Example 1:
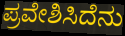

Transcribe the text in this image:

ಪ್ರವೇಶಿಸಿದೆನು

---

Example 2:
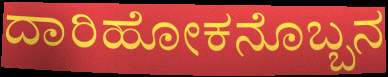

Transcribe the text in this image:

ದಾರಿಹೋಕನೊಬ್ಬನ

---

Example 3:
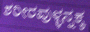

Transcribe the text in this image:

ಶರೀರವುಳ್ಳನ್ನಕ್ಕ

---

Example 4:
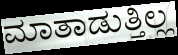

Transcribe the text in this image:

ಮಾತಾಡುತ್ತಿಲ್ಲ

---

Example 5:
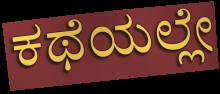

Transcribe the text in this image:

ಕಥೆಯಲ್ಲೇ